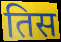
तिस